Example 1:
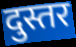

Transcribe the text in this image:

दुस्तर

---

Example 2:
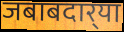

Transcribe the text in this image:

जबाबदार्‍या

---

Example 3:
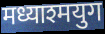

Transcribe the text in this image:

मध्याश्मयुग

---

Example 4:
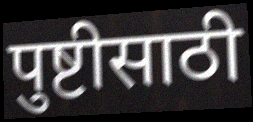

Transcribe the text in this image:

पुष्टीसाठी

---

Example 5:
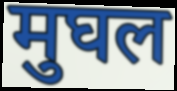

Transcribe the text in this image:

मुघल